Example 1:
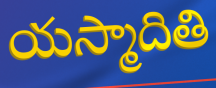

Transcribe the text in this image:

యస్మాదితి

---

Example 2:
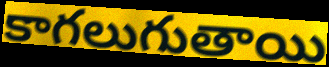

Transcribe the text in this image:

కాగలుగుతాయి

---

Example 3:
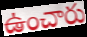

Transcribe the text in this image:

ఉంచారు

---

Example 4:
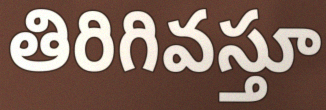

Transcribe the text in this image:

తిరిగివస్తూ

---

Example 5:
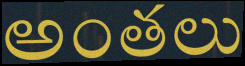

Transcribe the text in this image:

అంతలు